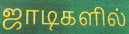
ஜாடிகளில்